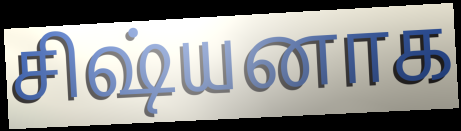
சிஷ்யனாக